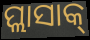
ପ୍ଲାସାକ୍